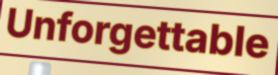
Unforgettable